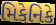
મિકેનિકે